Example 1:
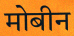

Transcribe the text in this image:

मोबीन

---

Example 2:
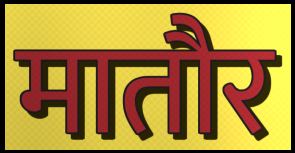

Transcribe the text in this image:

मातौर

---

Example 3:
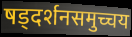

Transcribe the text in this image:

षड्दर्शनसमुच्चय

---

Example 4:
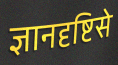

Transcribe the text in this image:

ज्ञानदृष्टिसे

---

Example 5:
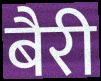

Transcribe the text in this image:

बैरी